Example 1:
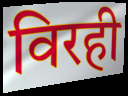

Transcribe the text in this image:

विरही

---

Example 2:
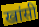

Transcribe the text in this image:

खांसी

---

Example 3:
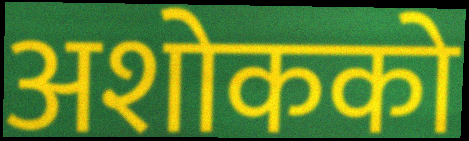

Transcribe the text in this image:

अशोकको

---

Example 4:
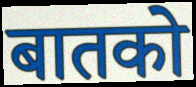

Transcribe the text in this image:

बातको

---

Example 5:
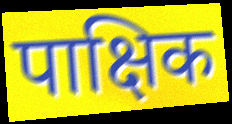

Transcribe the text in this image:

पाक्षिक